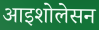
आइशोलेसन